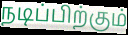
நடிப்பிற்கும்